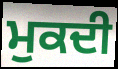
ਮੁਕਦੀ